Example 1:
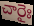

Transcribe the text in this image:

చారైః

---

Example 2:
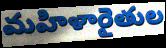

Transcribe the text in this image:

మహిళారైతుల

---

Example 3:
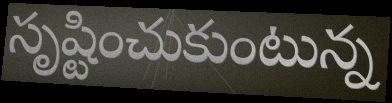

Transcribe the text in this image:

సృష్టించుకుంటున్న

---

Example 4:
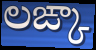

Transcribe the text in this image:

లఙ్కా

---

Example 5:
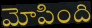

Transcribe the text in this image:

మోపింది